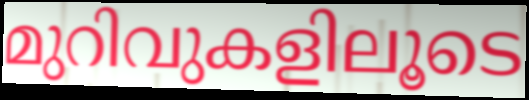
മുറിവുകളിലൂടെ